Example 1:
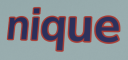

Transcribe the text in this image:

nique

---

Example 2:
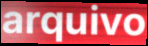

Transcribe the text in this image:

arquivo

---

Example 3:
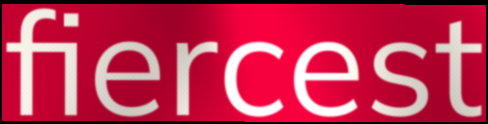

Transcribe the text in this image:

fiercest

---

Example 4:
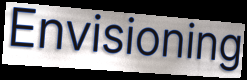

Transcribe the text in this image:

Envisioning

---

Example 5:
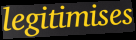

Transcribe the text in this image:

legitimises